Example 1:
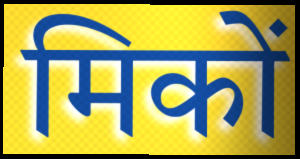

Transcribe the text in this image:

मिकों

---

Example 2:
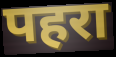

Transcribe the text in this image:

पहरा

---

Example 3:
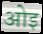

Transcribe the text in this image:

ओइ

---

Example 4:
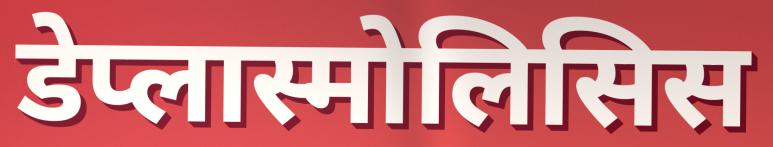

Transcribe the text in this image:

डेप्लास्मोलिसिस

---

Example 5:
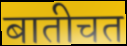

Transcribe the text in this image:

बातीचत